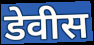
डेवीस